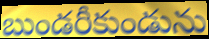
బుండరీకుండును